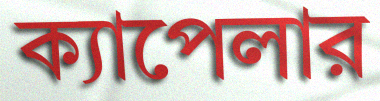
ক্যাপেলার